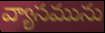
వ్యాసమును